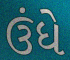
ઉંધે